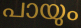
പായും